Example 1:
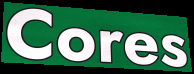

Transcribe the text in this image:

Cores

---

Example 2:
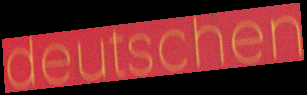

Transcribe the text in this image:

deutschen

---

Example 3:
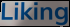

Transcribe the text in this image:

Liking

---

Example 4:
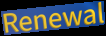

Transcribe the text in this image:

Renewal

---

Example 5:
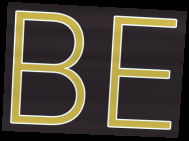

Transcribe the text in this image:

BE